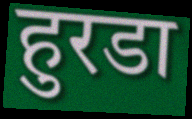
हुरडा